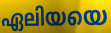
ഏലിയയെ